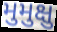
મુમુક્ષુ